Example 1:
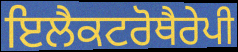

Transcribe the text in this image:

ਇਲੈਕਟਰੋਥੈਰੇਪੀ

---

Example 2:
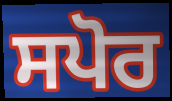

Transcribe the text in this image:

ਸਪੋਰ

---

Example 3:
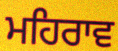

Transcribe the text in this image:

ਮਹਿਰਾਵ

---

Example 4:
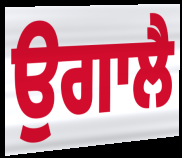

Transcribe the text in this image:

ਉਗਾਲੈ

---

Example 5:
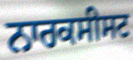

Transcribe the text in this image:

ਨਾਰਕਸੀਸਟ